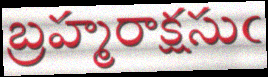
బ్రహ్మరాక్షసుఁ